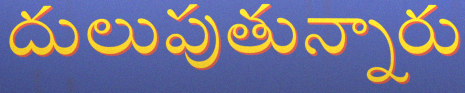
దులుపుతున్నారు